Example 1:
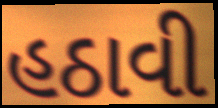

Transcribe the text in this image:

હઠાવી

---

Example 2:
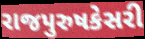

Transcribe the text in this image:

રાજપુરુષકેસરી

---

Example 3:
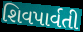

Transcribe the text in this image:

શિવપાર્વતી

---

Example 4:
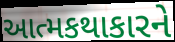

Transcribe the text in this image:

આત્મકથાકારને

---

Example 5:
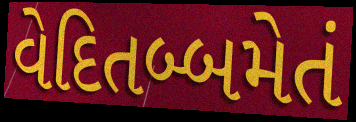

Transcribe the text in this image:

વેદિતબ્બમેતં